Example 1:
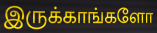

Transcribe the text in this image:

இருக்காங்களோ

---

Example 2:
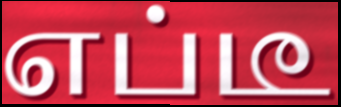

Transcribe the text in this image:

எப்டீ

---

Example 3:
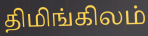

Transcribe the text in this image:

திமிங்கிலம்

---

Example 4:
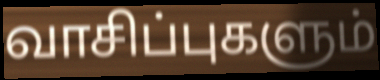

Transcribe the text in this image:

வாசிப்புகளும்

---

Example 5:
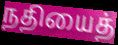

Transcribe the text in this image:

நதியைத்